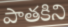
పాతకిని